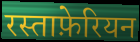
रस्ताफ़ेरियन